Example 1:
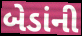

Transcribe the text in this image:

બેડાંની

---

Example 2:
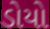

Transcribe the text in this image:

ડોયો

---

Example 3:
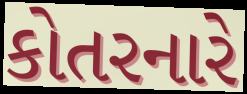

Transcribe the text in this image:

કોતરનારે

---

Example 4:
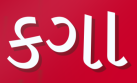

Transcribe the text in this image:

કગા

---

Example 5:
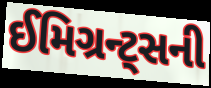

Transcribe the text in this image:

ઈમિગ્રન્ટ્સની